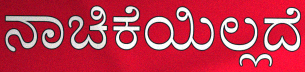
ನಾಚಿಕೆಯಿಲ್ಲದೆ